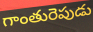
గాంతురెపుడు